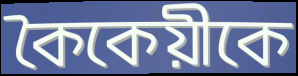
কৈকেয়ীকে